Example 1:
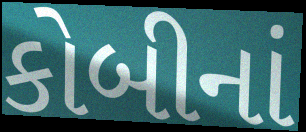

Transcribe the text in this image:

કોબીનાં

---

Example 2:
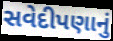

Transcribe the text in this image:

સવેદીપણાનું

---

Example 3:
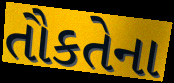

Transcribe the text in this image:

તૌકતેના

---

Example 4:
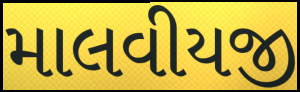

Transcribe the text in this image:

માલવીયજી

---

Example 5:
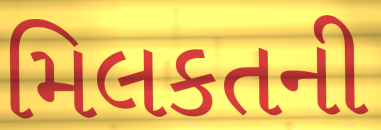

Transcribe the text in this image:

મિલકતની